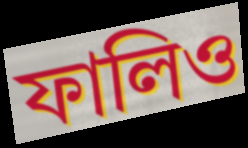
ফালিও